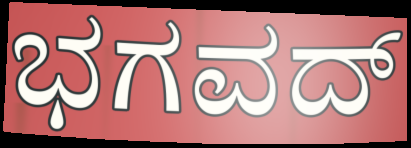
ಭಗವದ್